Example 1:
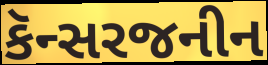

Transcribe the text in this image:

કૅન્સરજનીન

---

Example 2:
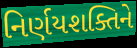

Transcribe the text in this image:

નિર્ણયશક્તિને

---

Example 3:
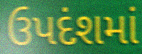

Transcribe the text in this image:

ઉપદંશમાં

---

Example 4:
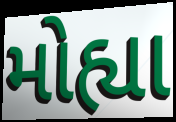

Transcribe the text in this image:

મોહ્યા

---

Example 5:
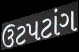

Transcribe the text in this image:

ઉટપટાંગ